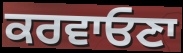
ਕਰਵਾਓਣਾ